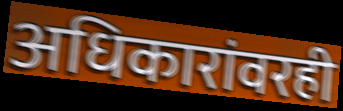
अधिकारांवरही